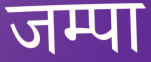
जम्पा